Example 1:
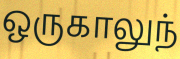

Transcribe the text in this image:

ஒருகாலுந்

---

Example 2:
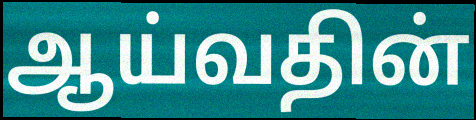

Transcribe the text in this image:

ஆய்வதின்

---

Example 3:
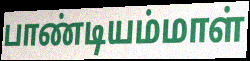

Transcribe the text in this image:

பாண்டியம்மாள்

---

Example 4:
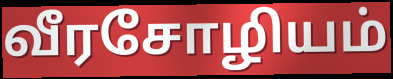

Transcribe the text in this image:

வீரசோழியம்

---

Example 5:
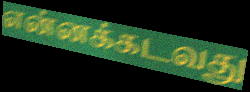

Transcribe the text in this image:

என்னக்கடவது